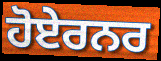
ਹੋਏਰਨਰ